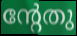
ന്റേതു